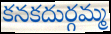
కనకదుర్గమ్మ